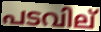
പടവില്